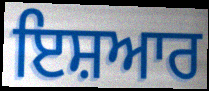
ਇਸ਼ਆਰ